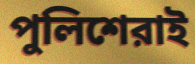
পুলিশেরাই